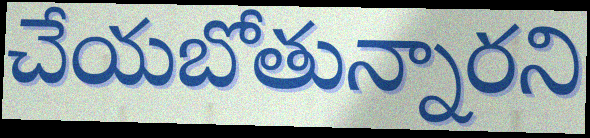
చేయబోతున్నారని